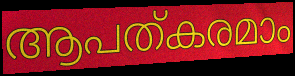
ആപത്കരമാം